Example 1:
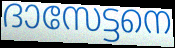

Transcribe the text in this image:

ദാസേട്ടനെ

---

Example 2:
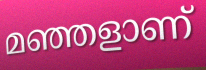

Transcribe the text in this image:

മഞ്ഞളാണ്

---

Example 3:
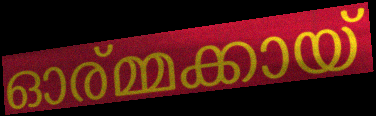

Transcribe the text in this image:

ഓര്മ്മക്കായ്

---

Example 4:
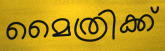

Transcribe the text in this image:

മൈത്രിക്ക്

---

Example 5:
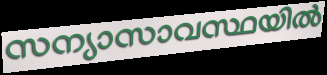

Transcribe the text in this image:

സന്യാസാവസ്ഥയിൽ